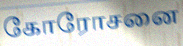
கோரோசனை